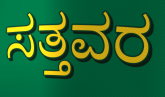
ಸತ್ತವರ